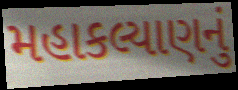
મહાકલ્યાણનું